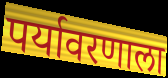
पर्यावरणाला